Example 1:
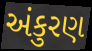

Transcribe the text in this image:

અંકુરણ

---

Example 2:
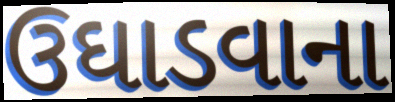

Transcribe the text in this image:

ઉઘાડવાના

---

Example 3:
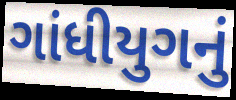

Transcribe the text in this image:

ગાંધીયુગનું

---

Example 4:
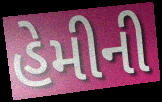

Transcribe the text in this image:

હેમીની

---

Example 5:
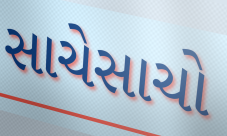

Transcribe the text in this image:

સાચેસાચો